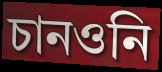
চানওনি